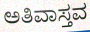
ಅತಿವಾಸ್ತವ